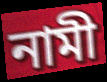
নামী